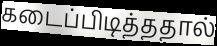
கடைப்பிடித்ததால்